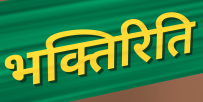
भक्तिरिति